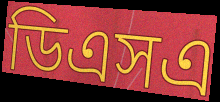
ডিএসএ